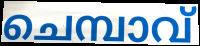
ചെമ്പാവ്